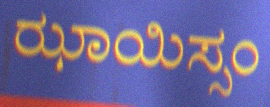
ಝಾಯಿಸ್ಸಂ